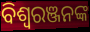
ବିଶ୍ବରଞ୍ଜନଙ୍କ